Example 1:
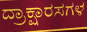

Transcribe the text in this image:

ದ್ರಾಕ್ಷಾರಸಗಳ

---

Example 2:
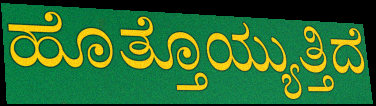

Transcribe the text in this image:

ಹೊತ್ತೊಯ್ಯುತ್ತಿದೆ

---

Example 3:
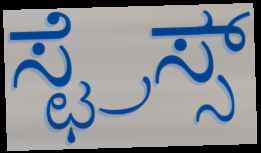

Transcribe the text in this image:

ಸ್ಟ್ರೆಸ್ಸ್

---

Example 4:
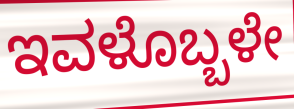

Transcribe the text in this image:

ಇವಳೊಬ್ಬಳೇ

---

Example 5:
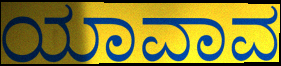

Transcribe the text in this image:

ಯಾವಾವ